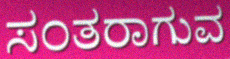
ಸಂತರಾಗುವ